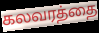
கலவரத்தை